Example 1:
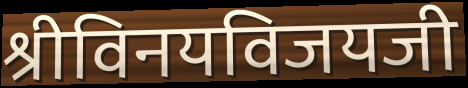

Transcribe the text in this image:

श्रीविनयविजयजी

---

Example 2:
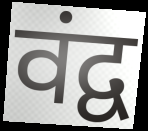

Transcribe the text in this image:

वंद्व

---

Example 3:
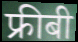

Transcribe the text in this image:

फ्रीबी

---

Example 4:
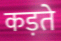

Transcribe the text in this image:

कड़ते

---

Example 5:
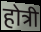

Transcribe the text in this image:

होत्री